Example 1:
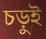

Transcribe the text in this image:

চড়ুই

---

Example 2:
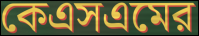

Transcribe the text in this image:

কেএসএমের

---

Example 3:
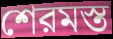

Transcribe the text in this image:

শেরমস্ত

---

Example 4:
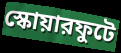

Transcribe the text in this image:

স্কোয়ারফুটে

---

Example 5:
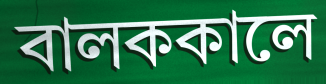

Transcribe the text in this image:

বালককালে